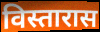
विस्तारास